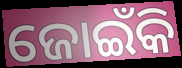
ଜୋଇଁକି